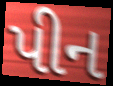
પીન